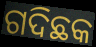
ଗଦିଛକ